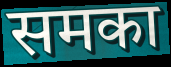
समका